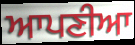
ਆਪਣੀਆ